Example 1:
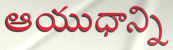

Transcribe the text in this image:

ఆయుధాన్ని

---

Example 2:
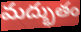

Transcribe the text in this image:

మద్భుతం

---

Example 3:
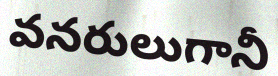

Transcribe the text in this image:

వనరులుగానీ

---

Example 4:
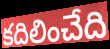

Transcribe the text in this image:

కదిలించేది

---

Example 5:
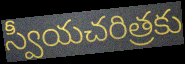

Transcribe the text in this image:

స్వీయచరిత్రకు